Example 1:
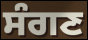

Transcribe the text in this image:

ਸੰਗਣ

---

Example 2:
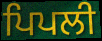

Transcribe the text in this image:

ਪਿਪਲੀ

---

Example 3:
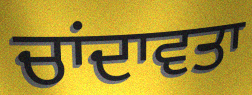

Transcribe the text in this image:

ਚਾਂਦਾਵਤਾ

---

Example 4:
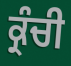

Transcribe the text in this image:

ਕ੍ਰੰਚੀ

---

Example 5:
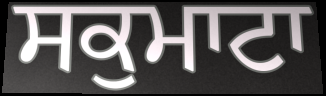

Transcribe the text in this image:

ਸਕੁਮਾਟਾ